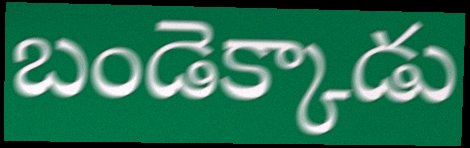
బండెక్కాడు